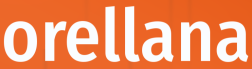
orellana